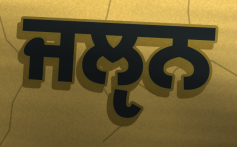
ਜਲੵਨ